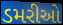
ડમરીઓ